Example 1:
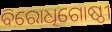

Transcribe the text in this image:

ବିରୋଧିଗୋଷ୍ଠୀ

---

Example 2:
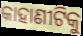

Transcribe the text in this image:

କାହାଣୀଟିକୁ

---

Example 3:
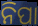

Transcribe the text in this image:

ନିପା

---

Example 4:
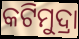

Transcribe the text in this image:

କଟିମୁଦ୍ରା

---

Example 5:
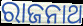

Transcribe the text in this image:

ରାଜନାଥ